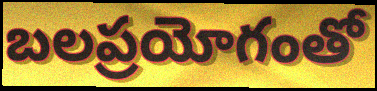
బలప్రయోగంతో